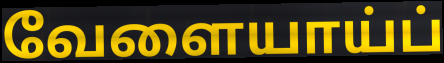
வேளையாய்ப்